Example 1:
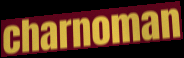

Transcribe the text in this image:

charnoman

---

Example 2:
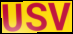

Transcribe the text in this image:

USV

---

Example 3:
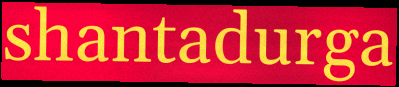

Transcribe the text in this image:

shantadurga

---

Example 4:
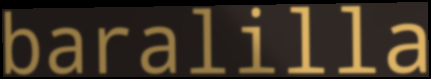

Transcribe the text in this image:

baralilla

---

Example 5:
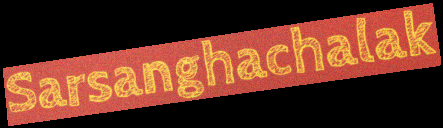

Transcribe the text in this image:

Sarsanghachalak